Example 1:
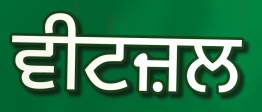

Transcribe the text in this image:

ਵੀਟਜ਼ਲ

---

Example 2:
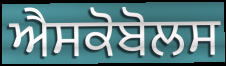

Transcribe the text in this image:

ਐਸਕੋਬੋਲਸ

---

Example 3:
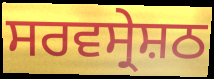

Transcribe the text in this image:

ਸਰਵਸ੍ਰੇਸ਼ਠ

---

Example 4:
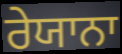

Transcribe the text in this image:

ਰੇਯਾਨਾ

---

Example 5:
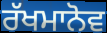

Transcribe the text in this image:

ਰੱਖਮਾਨੋਵ